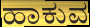
ಹಾಕುವ